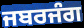
ਜਬਰਜੰਗ